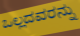
ಒಲ್ಲದವರನ್ನು